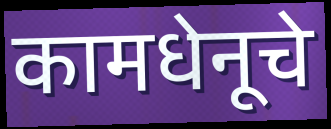
कामधेनूचे